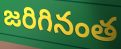
జరిగినంత